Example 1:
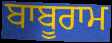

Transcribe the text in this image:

ਬਾਬੂਰਾਮ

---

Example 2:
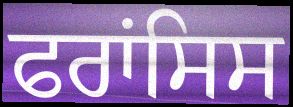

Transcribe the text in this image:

ਫਰਾਂਸਿਸ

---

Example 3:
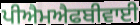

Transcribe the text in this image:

ਪੀਐਮਐਫਬੀਵਾਈ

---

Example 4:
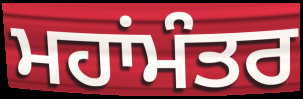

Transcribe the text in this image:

ਮਹਾਂਮੰਤਰ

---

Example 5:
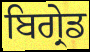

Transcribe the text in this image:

ਬਿਗ੍ਰੇਡ